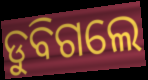
ଡୁବିଗଲେ